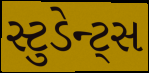
સ્ટુડેન્ટ્સ